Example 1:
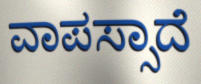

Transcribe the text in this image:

ವಾಪಸ್ಸಾದೆ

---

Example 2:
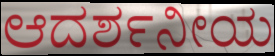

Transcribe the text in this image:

ಆದರ್ಶನೀಯ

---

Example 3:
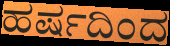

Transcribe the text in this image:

ಹರ್ಷದಿಂದ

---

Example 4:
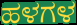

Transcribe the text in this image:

ಹಳಗಳ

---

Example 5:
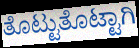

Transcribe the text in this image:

ತೊಟ್ಟುತೊಟ್ಟಾಗಿ